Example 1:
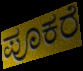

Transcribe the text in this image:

ಪೂಕರೆ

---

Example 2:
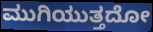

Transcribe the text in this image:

ಮುಗಿಯುತ್ತದೋ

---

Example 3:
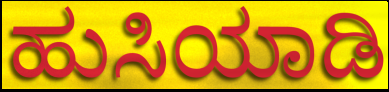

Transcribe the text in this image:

ಹುಸಿಯಾಡಿ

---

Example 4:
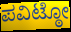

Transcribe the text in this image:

ಪವಿಟ್ಠೋ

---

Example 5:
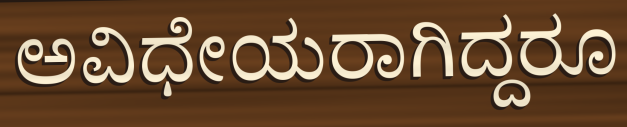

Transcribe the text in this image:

ಅವಿಧೇಯರಾಗಿದ್ದರೂ